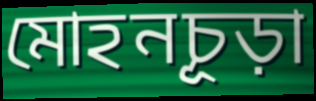
মোহনচূড়া